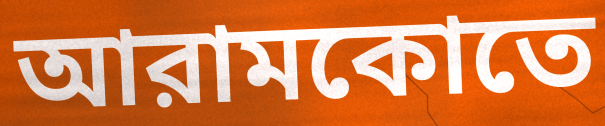
আরামকোতে